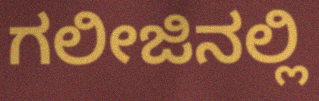
ಗಲೀಜಿನಲ್ಲಿ